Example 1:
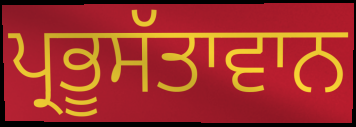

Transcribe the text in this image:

ਪ੍ਰਭੂਸੱਤਾਵਾਨ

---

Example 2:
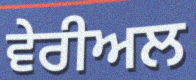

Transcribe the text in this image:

ਵੇਰੀਅਲ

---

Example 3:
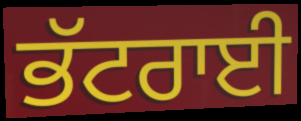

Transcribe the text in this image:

ਭੱਟਰਾਈ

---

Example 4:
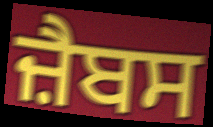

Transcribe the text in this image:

ਜ਼ੈਬਸ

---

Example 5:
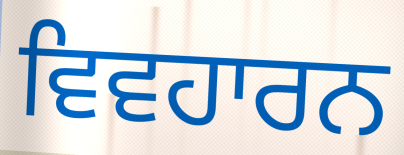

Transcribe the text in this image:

ਵਿਵਹਾਰਨ